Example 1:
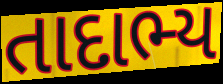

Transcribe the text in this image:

તાદાભ્ય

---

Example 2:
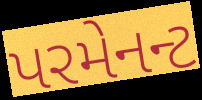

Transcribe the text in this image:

પરમેનન્ટ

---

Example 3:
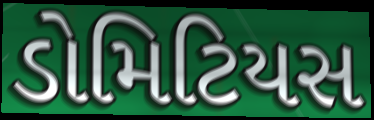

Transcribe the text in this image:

ડોમિટિયસ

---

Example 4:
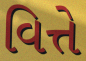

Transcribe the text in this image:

વિત્તે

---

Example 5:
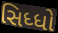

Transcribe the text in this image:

સિધ્ધો